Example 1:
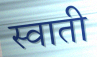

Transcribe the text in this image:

स्वाती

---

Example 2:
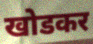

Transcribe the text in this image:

खोडकर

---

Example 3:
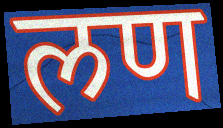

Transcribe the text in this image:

लण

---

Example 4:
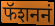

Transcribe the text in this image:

फॅशननं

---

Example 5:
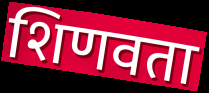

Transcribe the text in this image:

शिणवता